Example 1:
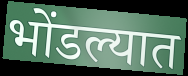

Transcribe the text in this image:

भोंडल्यात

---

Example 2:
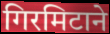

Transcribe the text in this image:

गिरमिटाने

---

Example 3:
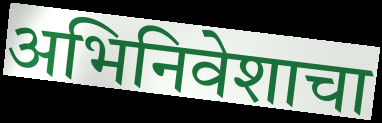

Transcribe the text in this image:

अभिनिवेशाचा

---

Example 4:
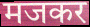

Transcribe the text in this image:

मजकर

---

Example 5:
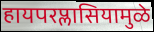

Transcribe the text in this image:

हायपरप्लासियामुळे